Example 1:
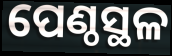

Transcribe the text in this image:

ପେଣ୍ଠସ୍ଥଳ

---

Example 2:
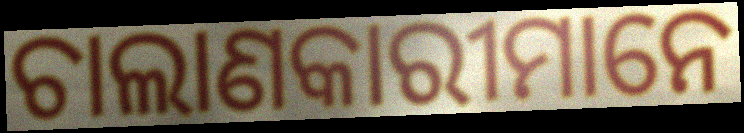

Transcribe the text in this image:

ଚାଲାଣକାରୀମାନେ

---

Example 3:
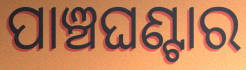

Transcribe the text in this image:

ପାଞ୍ଚଘଣ୍ଟାର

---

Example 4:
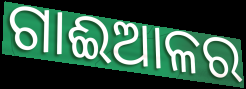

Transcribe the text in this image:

ଗାଈଆଳର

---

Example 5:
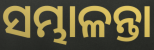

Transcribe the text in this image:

ସମ୍ଭାଳନ୍ତା